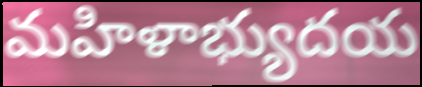
మహిళాభ్యుదయ